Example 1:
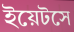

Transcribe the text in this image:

ইয়েটসে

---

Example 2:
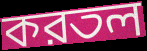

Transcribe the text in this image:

করতল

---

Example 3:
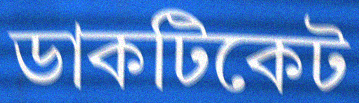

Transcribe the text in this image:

ডাকটিকেট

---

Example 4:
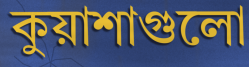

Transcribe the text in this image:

কুয়াশাগুলো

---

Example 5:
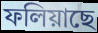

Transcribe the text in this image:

ফলিয়াছে